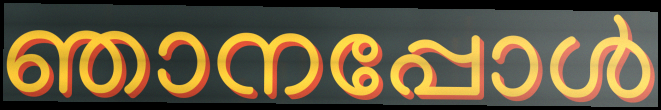
ഞാനപ്പോൾ